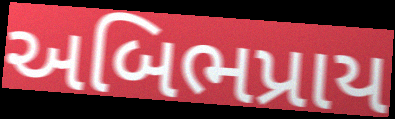
અબિભપ્રાય